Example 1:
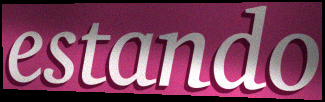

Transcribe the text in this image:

estando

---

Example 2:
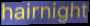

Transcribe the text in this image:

hairnight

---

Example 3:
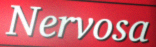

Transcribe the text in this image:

Nervosa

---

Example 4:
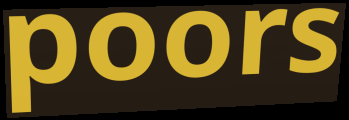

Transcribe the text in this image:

poors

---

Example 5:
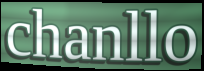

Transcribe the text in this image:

chanllo